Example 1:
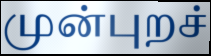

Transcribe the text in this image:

முன்புறச்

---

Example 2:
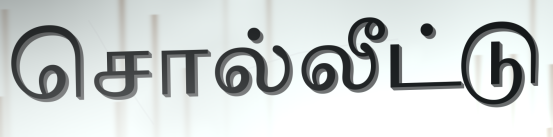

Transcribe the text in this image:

சொல்லீட்டு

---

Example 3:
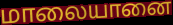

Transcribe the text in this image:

மாலையானை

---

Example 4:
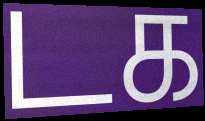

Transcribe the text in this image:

டக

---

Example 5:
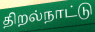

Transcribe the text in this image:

திறல்நாட்டு